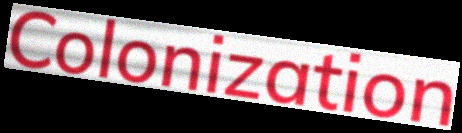
Colonization